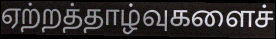
ஏற்றத்தாழ்வுகளைச்